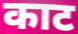
काट